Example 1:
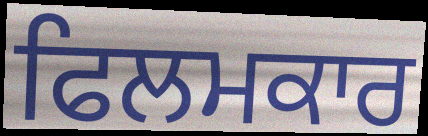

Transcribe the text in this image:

ਫਿਲਮਕਾਰ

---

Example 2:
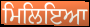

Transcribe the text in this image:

ਮਿਲਿਇਆ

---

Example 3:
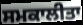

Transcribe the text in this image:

ਸਮਕਾਲੀਤਾ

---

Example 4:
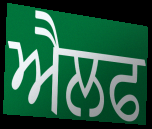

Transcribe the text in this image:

ਐਲਫ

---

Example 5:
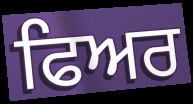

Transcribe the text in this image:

ਫਿਅਰ